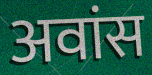
अवांस